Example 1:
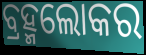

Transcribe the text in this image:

ବ୍ରହ୍ମଲୋକର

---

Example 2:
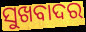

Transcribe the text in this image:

ସୁଖବାଦର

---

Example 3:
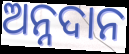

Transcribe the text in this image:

ଅନ୍ନଦାନ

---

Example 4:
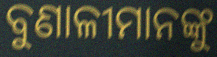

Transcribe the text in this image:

ବୁଣାଳୀମାନଙ୍କୁ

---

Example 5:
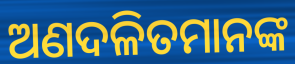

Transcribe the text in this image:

ଅଣଦଳିତମାନଙ୍କ